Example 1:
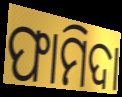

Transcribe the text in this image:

ଫାମିଦା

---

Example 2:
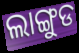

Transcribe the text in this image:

ଲାଙ୍ଗୁଡ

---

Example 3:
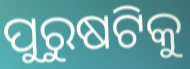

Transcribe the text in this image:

ପୁରୁଷଟିକୁ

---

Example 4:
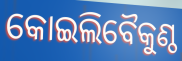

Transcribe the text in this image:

କୋଇଲିବୈକୁଣ୍ଠ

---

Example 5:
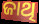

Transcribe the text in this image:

ଜାଥି